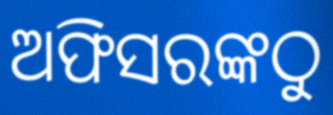
ଅଫିସରଙ୍କଠୁ